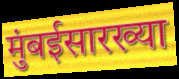
मुंबईसारख्या